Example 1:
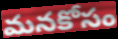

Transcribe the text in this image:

మనకోసం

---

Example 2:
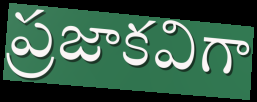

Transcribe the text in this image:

ప్రజాకవిగా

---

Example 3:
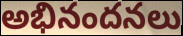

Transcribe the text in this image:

అభినందనలు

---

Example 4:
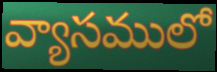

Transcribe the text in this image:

వ్యాసములో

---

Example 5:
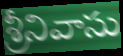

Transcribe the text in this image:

శ్రీనివాసు